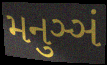
મનુઞ્ઞં